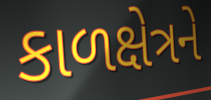
કાળક્ષેત્રને